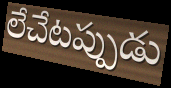
లేచేటప్పుడు